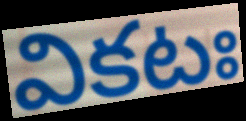
వికటః